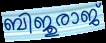
ബിജുരാജ്